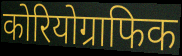
कोरियोग्राफिक